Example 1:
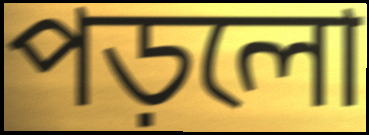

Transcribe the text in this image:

পড়লো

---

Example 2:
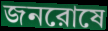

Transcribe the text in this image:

জনরোষে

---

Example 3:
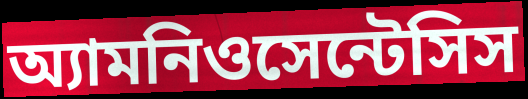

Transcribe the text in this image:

অ্যামনিওসেন্টেসিস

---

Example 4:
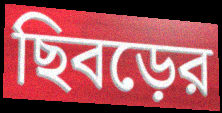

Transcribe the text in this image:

ছিবড়ের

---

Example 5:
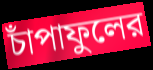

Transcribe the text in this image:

চাঁপাফুলের